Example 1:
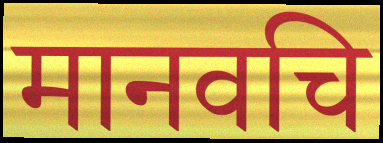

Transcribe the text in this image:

मानवचि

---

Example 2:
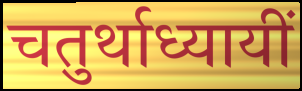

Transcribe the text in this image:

चतुर्थाध्यायीं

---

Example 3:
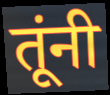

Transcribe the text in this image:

तूंनी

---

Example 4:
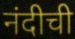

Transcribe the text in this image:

नंदीची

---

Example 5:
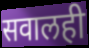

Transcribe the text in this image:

सवालही